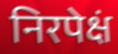
निरपेक्षं